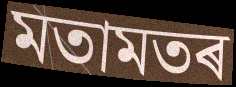
মতামতৰ